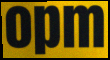
opm